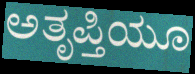
ಅತೃಪ್ತಿಯೂ